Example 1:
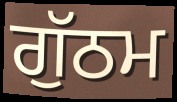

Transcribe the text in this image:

ਗੁੱਠਮ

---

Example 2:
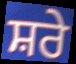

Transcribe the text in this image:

ਸ਼ਰੇ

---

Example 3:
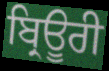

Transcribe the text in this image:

ਬ੍ਰਿਊਰੀ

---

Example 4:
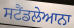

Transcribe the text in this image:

ਸਟੈਂਡਲੇਆਨਾ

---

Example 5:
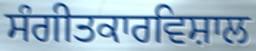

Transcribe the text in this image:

ਸੰਗੀਤਕਾਰਵਿਸ਼ਾਲ